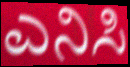
ಎನಿಸಿ